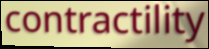
contractility